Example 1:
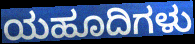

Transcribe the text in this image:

ಯಹೂದಿಗಳು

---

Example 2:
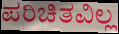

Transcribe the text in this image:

ಪರಿಚಿತವಿಲ್ಲ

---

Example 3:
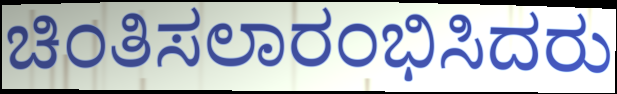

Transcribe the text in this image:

ಚಿಂತಿಸಲಾರಂಭಿಸಿದರು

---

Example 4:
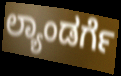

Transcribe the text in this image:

ಲ್ಯಾಂಡರ್ಗೆ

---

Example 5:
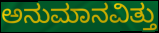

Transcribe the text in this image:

ಅನುಮಾನವಿತ್ತು